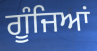
ਗੂੰਜਿਆਂ